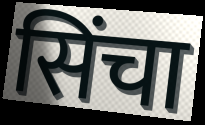
सिंचा